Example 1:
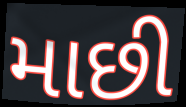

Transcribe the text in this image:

માછી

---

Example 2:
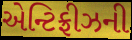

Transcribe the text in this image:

એન્ટિફ્રીઝની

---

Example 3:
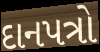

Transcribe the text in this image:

દાનપત્રો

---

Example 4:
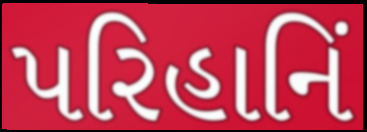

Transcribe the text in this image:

પરિહાનિં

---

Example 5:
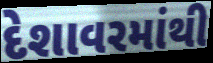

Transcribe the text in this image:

દેશાવરમાંથી